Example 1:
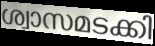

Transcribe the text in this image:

ശ്വാസമടക്കി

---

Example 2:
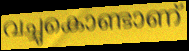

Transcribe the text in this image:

വച്ചുകൊണ്ടാണ്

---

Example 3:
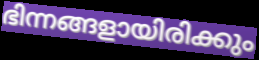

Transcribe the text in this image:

ഭിന്നങ്ങളായിരിക്കും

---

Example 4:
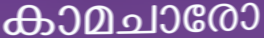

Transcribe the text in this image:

കാമചാരോ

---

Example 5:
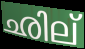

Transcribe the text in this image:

ഛില്